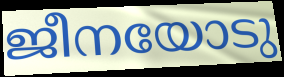
ജീനയോടു